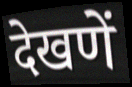
देखणें